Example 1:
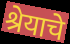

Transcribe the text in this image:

श्रेयाचे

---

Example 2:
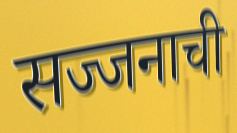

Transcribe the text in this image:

सज्जनाची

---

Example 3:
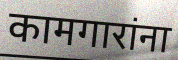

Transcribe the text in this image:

कामगारांना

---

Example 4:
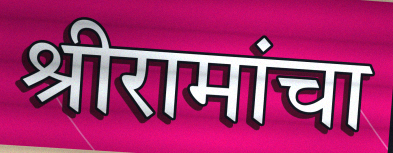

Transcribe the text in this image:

श्रीरामांचा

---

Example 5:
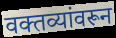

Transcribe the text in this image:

वक्तव्यांवरून